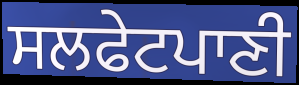
ਸਲਫੇਟਪਾਣੀ